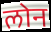
लोन